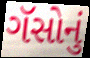
ગૅસોનું